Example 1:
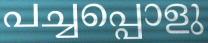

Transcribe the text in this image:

പച്ചപ്പൊളു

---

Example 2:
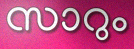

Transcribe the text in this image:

സാറും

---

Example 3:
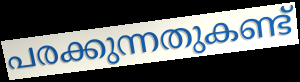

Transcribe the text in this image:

പരക്കുന്നതുകണ്ട്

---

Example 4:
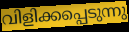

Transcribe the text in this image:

വിളിക്കപ്പെടുന്നു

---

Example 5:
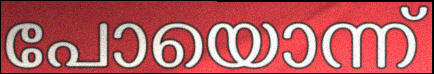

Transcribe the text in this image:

പോയൊന്ന്